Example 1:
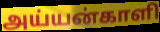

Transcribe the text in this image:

அய்யன்காளி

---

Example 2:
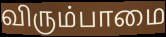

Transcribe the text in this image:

விரும்பாமை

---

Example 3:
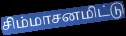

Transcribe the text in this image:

சிம்மாசனமிட்டு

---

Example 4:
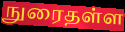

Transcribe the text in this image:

நுரைதள்ள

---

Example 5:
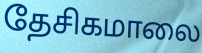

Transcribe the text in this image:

தேசிகமாலை